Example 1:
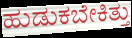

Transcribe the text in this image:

ಹುಡುಕಬೇಕಿತ್ತು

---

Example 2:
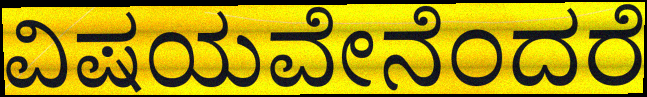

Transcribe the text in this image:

ವಿಷಯವೇನೆಂದರೆ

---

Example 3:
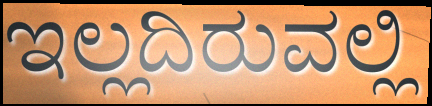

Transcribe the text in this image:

ಇಲ್ಲದಿರುವಲ್ಲಿ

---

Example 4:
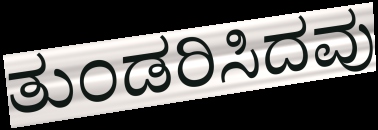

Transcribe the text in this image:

ತುಂಡರಿಸಿದವು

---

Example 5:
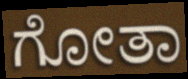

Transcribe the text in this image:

ಗೋತಾ